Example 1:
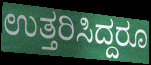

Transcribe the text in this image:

ಉತ್ತರಿಸಿದ್ದರೂ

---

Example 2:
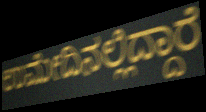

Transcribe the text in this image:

ಉಮೇದಿನಲ್ಲಿದ್ದಾರೆ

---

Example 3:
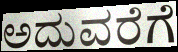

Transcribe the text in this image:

ಅದುವರೆಗೆ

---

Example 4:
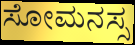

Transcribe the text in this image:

ಸೋಮನಸ್ಸ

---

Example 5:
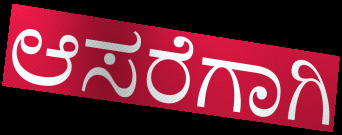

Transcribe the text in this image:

ಆಸರೆಗಾಗಿ